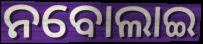
ନବୋଲାଇ